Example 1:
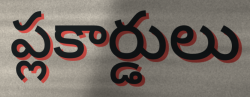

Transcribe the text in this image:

ప్లకార్డులు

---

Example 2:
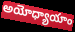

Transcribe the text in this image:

అయోధ్యాయాం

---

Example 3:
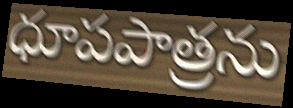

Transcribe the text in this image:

ధూపపాత్రను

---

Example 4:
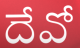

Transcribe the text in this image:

దేవో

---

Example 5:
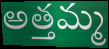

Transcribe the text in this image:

అత్తమ్మ